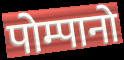
पोम्पानो